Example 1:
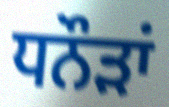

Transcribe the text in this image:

ਧਨੌੜਾਂ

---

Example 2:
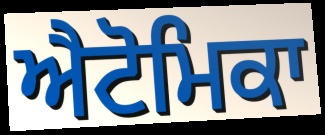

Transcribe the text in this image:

ਐਟੋਮਿਕਾ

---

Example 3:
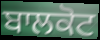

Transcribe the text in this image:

ਬਾਲਕੋਟ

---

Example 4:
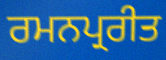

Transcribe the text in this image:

ਰਮਨਪ੍ਰਰੀਤ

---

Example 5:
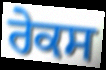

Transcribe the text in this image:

ਰੇਕਸ